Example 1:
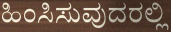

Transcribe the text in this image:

ಹಿಂಸಿಸುವುದರಲ್ಲಿ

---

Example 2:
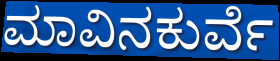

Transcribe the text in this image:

ಮಾವಿನಕುರ್ವೆ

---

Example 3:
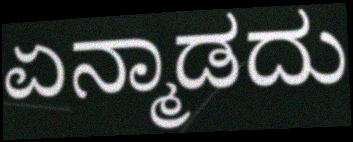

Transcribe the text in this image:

ಏನ್ಮಾಡದು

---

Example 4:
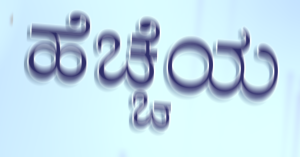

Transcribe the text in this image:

ಹೆಚ್ಚೆಯ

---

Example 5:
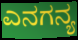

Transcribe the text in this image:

ಎನಗನ್ಯ